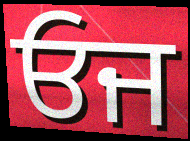
ਓਜ